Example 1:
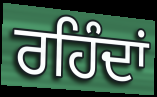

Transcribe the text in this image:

ਰਹਿੰਦਾਂ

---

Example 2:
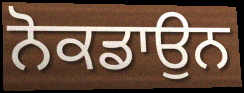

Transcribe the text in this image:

ਨੋਕਡਾਉਨ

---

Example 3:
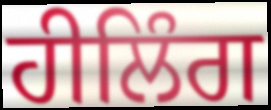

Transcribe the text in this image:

ਹੀਲਿੰਗ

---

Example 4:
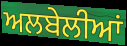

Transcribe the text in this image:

ਅਲਬੇਲੀਆਂ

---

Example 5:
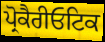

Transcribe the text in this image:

ਪ੍ਰੋਕੈਰੀਓਟਿਕ